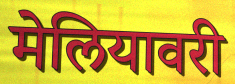
मेलियावरी